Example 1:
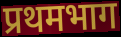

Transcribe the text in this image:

प्रथमभाग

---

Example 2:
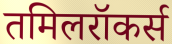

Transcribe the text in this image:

तमिलरॉकर्स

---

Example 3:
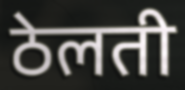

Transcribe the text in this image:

ठेलती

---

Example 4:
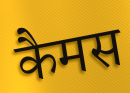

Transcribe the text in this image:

कैमस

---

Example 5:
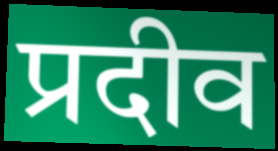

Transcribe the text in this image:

प्रदीव